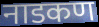
नाडकण